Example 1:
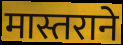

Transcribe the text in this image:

मास्तराने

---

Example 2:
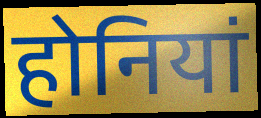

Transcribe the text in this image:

होनियां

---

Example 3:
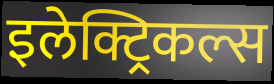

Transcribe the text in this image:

इलेक्ट्रिकल्स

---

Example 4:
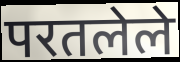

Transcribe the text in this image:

परतलेले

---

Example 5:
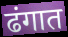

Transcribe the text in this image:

ढंगात